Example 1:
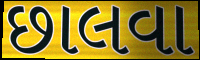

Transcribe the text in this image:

છાલવા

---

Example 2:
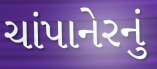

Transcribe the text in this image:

ચાંપાનેરનું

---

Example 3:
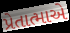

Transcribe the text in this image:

પ્રેતાત્માએ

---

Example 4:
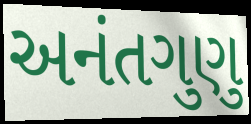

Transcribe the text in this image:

અનંતગુણુ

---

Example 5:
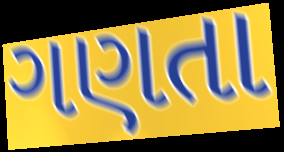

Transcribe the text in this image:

ગણતા